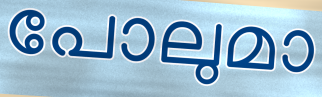
പോലുമാ